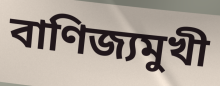
বাণিজ্যমুখী